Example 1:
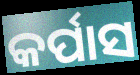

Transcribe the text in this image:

କର୍ପାସ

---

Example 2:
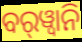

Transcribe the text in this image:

ବର୍‍ୱ୍ୱାନି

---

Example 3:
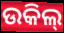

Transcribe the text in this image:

ଉକିଲ୍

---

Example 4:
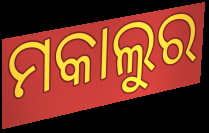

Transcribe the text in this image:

ମକାଲୁର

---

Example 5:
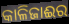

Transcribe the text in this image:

କାଳିଜାଈର